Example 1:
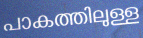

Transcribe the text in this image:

പാകത്തിലുള്ള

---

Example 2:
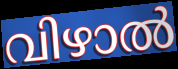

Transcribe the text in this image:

വിഴാൽ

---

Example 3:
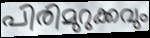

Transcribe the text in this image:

പിരിമുറുക്കവും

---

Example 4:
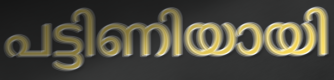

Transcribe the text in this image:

പട്ടിണിയായി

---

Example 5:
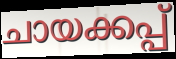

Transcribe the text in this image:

ചായക്കപ്പ്